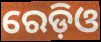
ରେଡ଼ିଓ